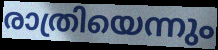
രാത്രിയെന്നും